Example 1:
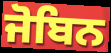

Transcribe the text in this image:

ਜੋਬਿਨ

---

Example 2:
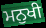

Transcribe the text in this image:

ਮਨੁਖੀ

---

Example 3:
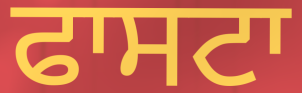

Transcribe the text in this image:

ਫਾਸਟਾ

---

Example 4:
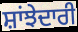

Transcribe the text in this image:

ਸ਼ਾਂਝੇਦਾਰੀ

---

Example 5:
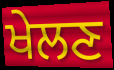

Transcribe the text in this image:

ਖੇਲਣ